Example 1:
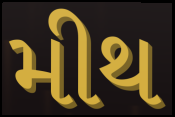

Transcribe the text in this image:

મીથ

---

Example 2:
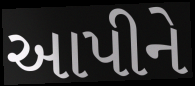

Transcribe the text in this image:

આપીને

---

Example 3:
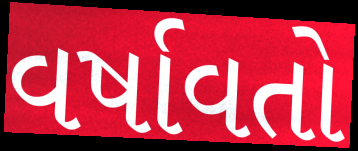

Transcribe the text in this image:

વર્ષાવતો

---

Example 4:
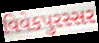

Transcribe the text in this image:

વિવેકપુરસ્સર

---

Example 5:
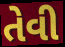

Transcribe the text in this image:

તેવી